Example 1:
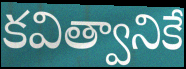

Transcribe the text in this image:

కవిత్వానికే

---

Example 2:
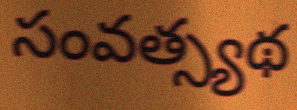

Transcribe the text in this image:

సంవత్స్యథ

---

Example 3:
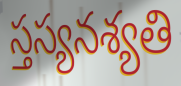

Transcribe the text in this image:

స్తస్యనశ్యతి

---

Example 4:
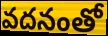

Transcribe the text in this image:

వదనంతో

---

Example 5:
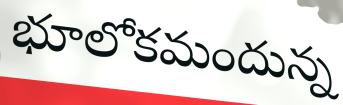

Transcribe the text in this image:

భూలోకమందున్న